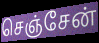
செஞ்சேன்